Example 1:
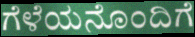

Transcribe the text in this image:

ಗೆಳೆಯನೊಂದಿಗೆ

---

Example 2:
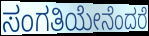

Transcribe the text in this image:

ಸಂಗತಿಯೇನೆಂದರೆ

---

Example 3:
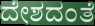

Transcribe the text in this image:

ದೇಶದಂತೆ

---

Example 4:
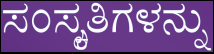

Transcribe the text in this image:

ಸಂಸ್ಕೃತಿಗಳನ್ನು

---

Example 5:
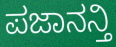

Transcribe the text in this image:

ಪಜಾನನ್ತಿ